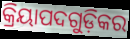
କ୍ରିୟାପଦଗୁଡ଼ିକର